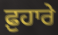
ਫ਼ੁਹਾਰੇ